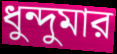
ধুন্দুমার